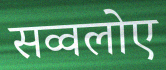
सव्वलोए